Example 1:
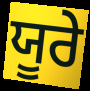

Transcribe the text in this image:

ਯੂਰੇ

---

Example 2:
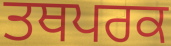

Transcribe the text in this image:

ਤਥਪਰਕ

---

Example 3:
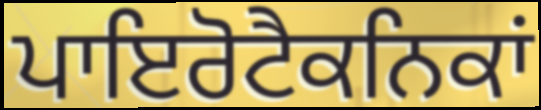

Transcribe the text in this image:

ਪਾਇਰੋਟੈਕਨਿਕਾਂ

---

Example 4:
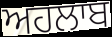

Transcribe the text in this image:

ਅਹਲਾਬ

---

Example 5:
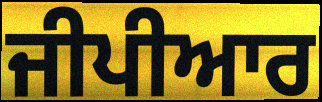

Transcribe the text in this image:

ਜੀਪੀਆਰ